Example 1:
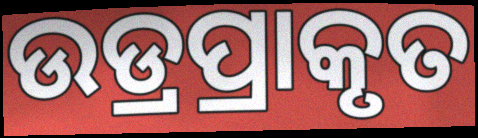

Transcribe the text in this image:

ଉଡ୍ରପ୍ରାକୃତ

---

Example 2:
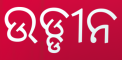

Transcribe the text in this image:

ଉଡ୍ଡୀନ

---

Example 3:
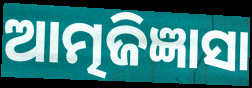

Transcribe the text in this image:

ଆତ୍ମଜିଜ୍ଞାସା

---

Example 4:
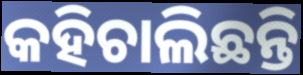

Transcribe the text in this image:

କହିଚାଲିଛନ୍ତି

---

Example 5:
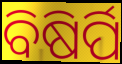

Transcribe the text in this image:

ବିଷିର୍ପି